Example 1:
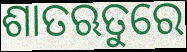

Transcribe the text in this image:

ଶାତଋତୁରେ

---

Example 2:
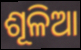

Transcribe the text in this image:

ଶୂଳିଆ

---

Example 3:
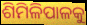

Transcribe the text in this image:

ଶିମିଳିପାଳକୁ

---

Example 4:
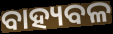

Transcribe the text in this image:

ବାହ୍ୟବଳ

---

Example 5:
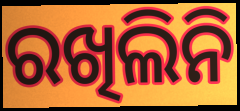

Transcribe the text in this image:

ରଖିଲିନି